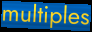
multiples